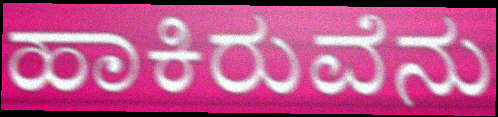
ಹಾಕಿರುವೆನು